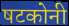
षटकोनी